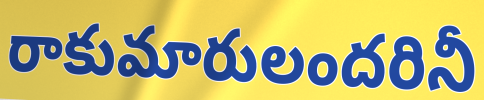
రాకుమారులందరినీ